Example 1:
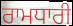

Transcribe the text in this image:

ਰਾਮਧਾਰੀ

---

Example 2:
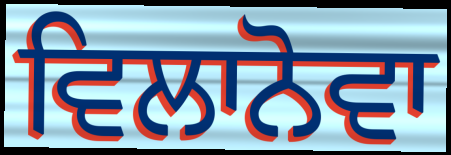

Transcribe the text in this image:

ਵਿਲਾਨੋਵਾ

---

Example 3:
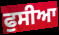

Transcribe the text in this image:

ਫੁਸੀਆ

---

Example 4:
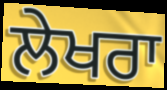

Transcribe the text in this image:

ਲੇਖਰਾ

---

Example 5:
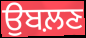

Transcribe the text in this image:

ਉਬਲ਼ਣ